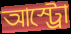
আস্ট্রো